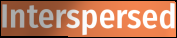
Interspersed